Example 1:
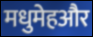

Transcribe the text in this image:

मधुमेहऔर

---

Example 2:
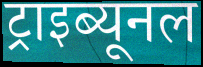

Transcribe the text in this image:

ट्राइब्यूनल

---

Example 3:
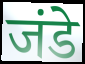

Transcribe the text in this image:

जंडे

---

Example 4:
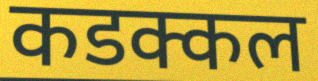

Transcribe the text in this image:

कडक्कल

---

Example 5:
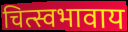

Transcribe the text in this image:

चित्स्वभावाय